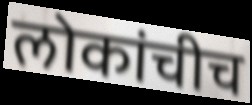
लोकांचीच